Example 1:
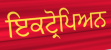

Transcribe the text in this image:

ਇਕਟ੍ਰੋਪਿਅਨ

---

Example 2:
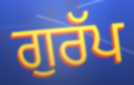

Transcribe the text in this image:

ਗੁਰੱਪ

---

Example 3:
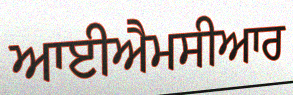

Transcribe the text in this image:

ਆਈਐਮਸੀਆਰ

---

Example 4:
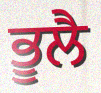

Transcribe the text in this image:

ਭੂਲੈ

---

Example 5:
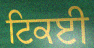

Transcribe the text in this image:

ਟਿਕਈ